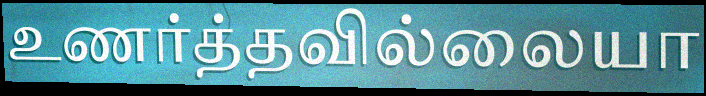
உணர்த்தவில்லையா